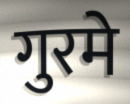
गुरमे